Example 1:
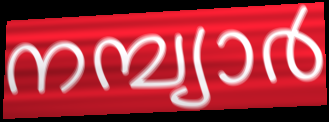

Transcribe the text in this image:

നമ്പ്യാർ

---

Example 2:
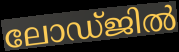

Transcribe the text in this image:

ലോഡ്ജിൽ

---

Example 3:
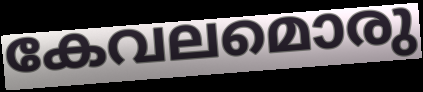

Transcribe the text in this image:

കേവലമൊരു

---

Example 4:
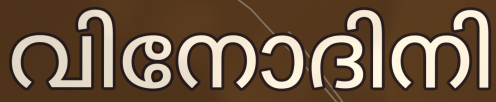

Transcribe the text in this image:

വിനോദിനി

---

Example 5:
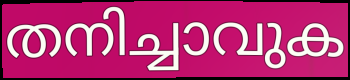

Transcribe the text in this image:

തനിച്ചാവുക